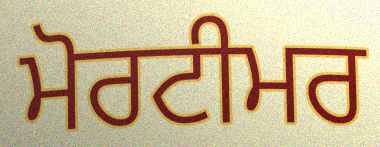
ਮੋਰਟੀਮਰ